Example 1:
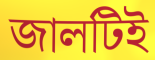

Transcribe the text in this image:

জালটিই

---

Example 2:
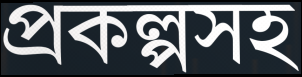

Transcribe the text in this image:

প্রকল্পসহ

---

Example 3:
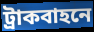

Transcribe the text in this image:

ট্রাকবাহনে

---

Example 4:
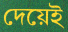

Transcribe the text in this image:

দেয়েই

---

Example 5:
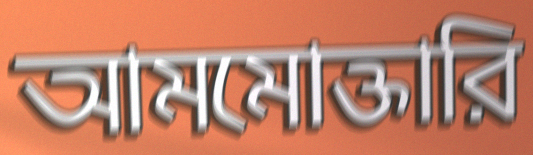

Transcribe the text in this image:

আমমোক্তারি